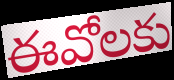
ఈవోలకు